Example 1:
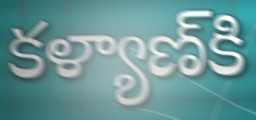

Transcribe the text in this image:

కళ్యాణ్‍కి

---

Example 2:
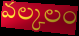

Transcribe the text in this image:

వల్కలం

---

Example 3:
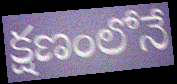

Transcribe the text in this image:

క్షణంలోనే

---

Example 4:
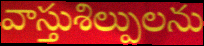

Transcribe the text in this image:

వాస్తుశిల్పులను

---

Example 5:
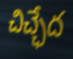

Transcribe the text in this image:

చిచ్ఛేద